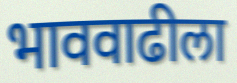
भाववाढीला